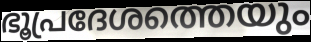
ഭൂപ്രദേശത്തെയും